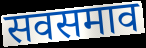
सवसमाव